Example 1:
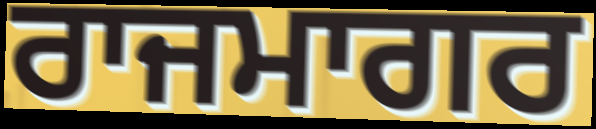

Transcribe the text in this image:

ਰਾਜਮਾਗਰ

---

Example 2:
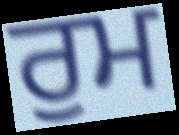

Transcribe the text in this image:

ਰੁਮ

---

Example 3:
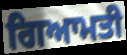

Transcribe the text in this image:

ਗਿਆਮਤੀ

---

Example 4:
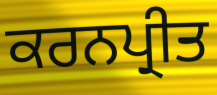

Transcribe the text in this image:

ਕਰਨਪ੍ਰੀਤ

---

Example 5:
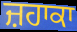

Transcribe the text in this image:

ਜ਼ਹਾਕਾ